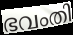
ഭവംതി